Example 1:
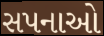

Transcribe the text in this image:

સપનાઓ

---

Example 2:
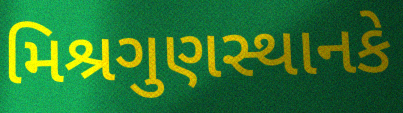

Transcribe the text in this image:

મિશ્રગુણસ્થાનકે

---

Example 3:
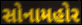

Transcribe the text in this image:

સોનામહોર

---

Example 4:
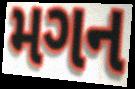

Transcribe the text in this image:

મગન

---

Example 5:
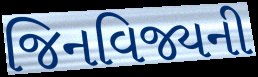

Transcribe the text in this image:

જિનવિજ્યની